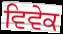
ਵਿਵੇਕ